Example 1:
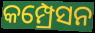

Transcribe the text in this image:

କମ୍ପ୍ରେସନ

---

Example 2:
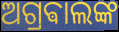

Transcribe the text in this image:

ଅଗ୍ରଵାଲଙ୍କ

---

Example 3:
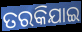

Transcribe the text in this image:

ତରକିଯାଇ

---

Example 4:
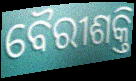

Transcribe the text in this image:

ବୈରୀଶକ୍ତି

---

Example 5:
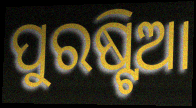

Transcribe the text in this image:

ପୁରଷ୍ଟିଆ